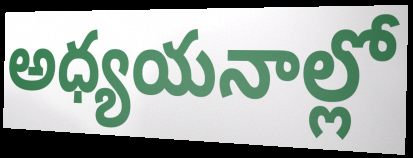
అధ్యయనాల్లో